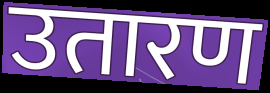
उतारण